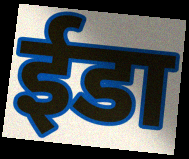
ईडा